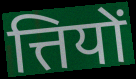
त्तियों